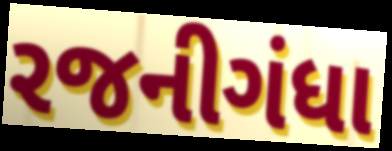
રજનીગંધા